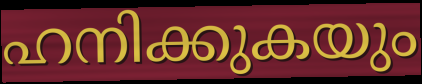
ഹനിക്കുകയും